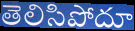
తెలిసిపోదూ